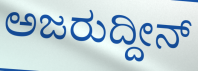
ಅಜರುದ್ದೀನ್